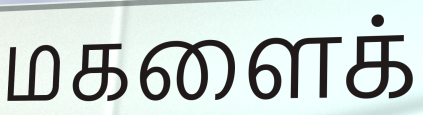
மகளைக்